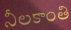
నీలకాంతి